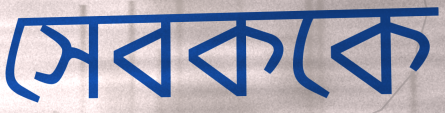
সেবককে